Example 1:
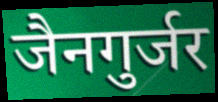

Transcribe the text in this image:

जैनगुर्जर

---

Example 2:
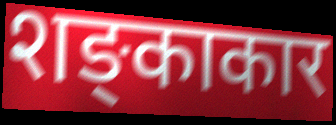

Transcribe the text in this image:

शङ्काकार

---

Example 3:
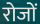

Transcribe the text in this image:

रोजों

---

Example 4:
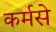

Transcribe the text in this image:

कर्मसे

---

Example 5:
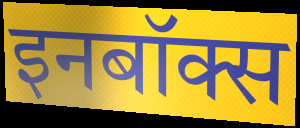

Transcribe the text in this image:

इनबॉक्स